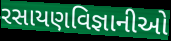
રસાયણવિજ્ઞાનીઓ